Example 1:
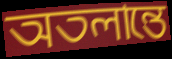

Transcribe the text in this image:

অতলান্তে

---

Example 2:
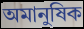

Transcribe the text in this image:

অমানুষিক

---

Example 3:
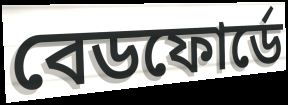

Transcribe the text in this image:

বেডফোর্ডে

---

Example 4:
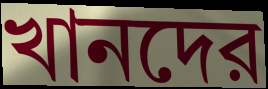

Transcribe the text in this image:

খানদের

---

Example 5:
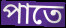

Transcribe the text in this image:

পাতে